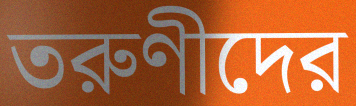
তরুণীদের